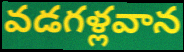
వడగళ్లవాన